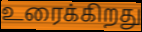
உரைக்கிறது